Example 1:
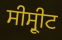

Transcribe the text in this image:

ਸੀਸ੍ਟ੍ਰੀਟ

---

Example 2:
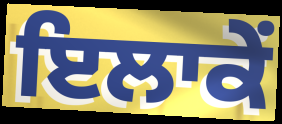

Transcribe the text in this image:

ਇਲਾਕੇਂ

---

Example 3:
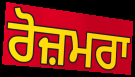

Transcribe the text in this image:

ਰੋਜ਼ਮਰਾ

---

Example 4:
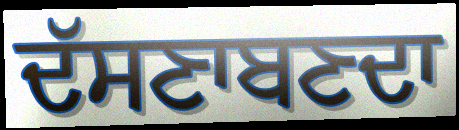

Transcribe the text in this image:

ਦੱਸਣਾਬਣਦਾ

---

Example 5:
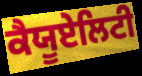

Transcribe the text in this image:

ਕੈਯੂਏਲਿਟੀ